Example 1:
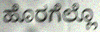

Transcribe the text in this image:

ಹೊರಗೆಲ್ಲೊ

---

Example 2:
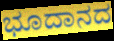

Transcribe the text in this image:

ಭೂದಾನದ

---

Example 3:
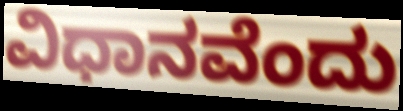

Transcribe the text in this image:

ವಿಧಾನವೆಂದು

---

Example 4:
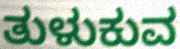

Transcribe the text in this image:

ತುಳುಕುವ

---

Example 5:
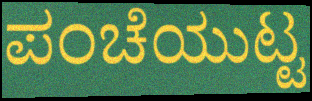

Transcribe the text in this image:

ಪಂಚೆಯುಟ್ಟ